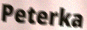
Peterka